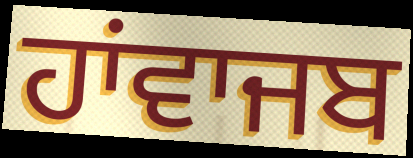
ਹਾਂਵਾਜਬ